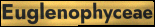
Euglenophyceae